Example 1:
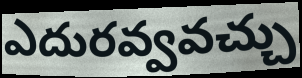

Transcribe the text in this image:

ఎదురవ్వవచ్చు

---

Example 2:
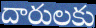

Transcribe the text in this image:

దారులకు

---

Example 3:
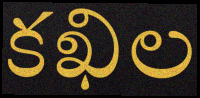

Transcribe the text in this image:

కఖిల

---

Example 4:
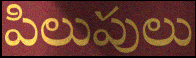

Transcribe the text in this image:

పిలుపులు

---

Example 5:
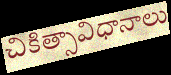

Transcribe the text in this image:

చికిత్సావిధానాలు